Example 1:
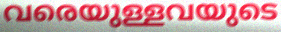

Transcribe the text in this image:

വരെയുള്ളവയുടെ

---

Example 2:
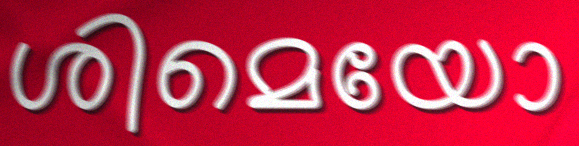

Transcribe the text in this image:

ശിമെയോ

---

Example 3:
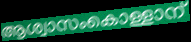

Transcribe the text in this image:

ആശ്വാസംകൊള്ളാന്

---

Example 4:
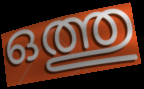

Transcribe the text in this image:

ഒത്തു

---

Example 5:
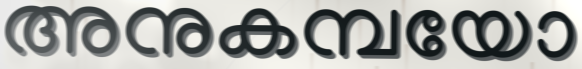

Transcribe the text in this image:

അനുകമ്പയോ